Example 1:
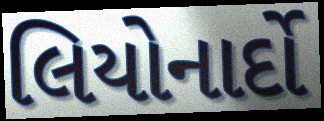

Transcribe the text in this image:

લિયોનાર્દો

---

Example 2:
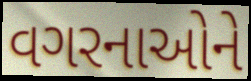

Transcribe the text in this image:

વગરનાઓને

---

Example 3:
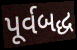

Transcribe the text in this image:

પૂર્વબદ્ધ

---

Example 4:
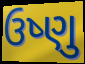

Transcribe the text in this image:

ઉષ્ણુ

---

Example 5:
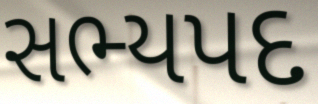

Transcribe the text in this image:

સભ્યપદ